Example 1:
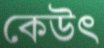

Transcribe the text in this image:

কেউৎ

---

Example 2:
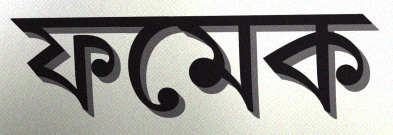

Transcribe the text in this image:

ফমেক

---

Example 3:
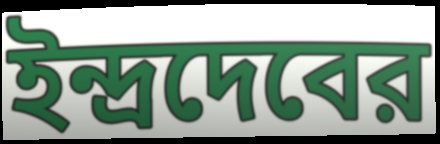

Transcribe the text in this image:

ইন্দ্রদেবের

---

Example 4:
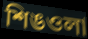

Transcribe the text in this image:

শিঙওলা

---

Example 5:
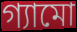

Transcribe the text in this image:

গ্যামো